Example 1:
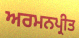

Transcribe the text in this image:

ਅਰਮਨਪ੍ਰੀਤ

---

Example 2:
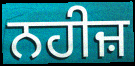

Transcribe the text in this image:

ਨਹੀਜ਼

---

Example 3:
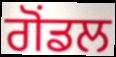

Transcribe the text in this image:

ਗੋਂਡਲ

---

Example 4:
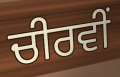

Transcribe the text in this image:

ਚੀਰਵੀਂ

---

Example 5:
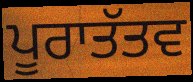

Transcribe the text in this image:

ਪੂਰਾਤੱਤਵ